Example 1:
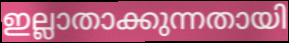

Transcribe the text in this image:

ഇല്ലാതാക്കുന്നതായി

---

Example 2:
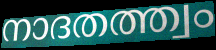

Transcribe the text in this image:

നാദതത്ത്വം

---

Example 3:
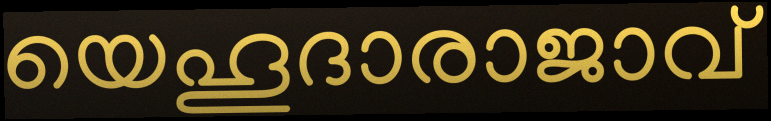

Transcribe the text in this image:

യെഹൂദാരാജാവ്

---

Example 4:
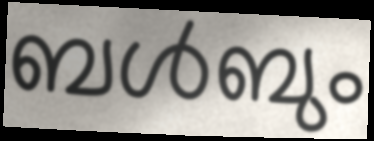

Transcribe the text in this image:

ബൾബും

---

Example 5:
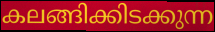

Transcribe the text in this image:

കലങ്ങിക്കിടക്കുന്ന